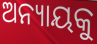
ଅନ୍ୟାୟକୁ